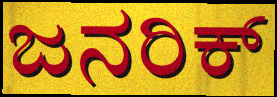
ಜನರಿಕ್